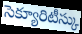
సెక్యూరిటీస్కు